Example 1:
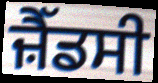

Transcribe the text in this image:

ਜ਼ੈੱਡਸੀ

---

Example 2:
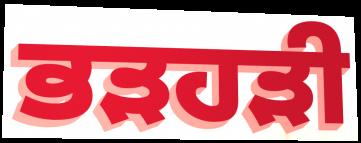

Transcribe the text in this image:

ਭੜਹੜੀ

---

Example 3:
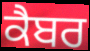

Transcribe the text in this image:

ਕੈਬਰ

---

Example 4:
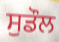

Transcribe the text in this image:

ਸੁਡੌਲ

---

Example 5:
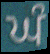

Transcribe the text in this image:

ਘੰ